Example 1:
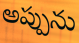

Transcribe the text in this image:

అప్పును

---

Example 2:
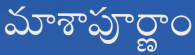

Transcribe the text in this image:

మాశాపూర్ణాం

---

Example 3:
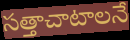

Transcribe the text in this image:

సత్తాచాటాలనే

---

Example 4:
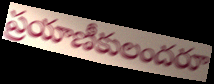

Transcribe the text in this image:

ప్రయాణీకులందరూ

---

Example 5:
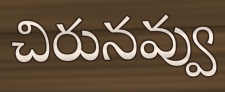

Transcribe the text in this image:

చిరునవ్వు